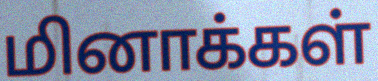
மினாக்கள்